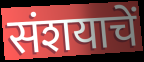
संशयाचें